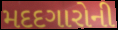
મદદગારોની